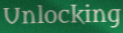
Unlocking